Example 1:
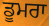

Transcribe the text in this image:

ਡੂਮਰਾ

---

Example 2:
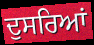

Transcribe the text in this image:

ਦੁਸਰਿਆਂ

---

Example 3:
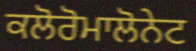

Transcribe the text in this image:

ਕਲੋਰੋਮਾਲੋਨੇਟ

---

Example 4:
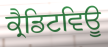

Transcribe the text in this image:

ਕ੍ਰੈਡਿਟਵਿਊ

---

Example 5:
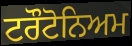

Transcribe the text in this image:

ਟਰੌਟੋਨਿਅਮ